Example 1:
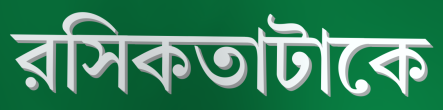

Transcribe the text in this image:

রসিকতাটাকে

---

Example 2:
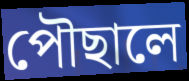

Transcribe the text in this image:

পৌছালে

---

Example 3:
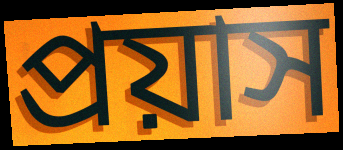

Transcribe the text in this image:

প্রয়াস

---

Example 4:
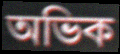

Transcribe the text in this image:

অভিক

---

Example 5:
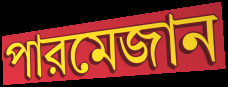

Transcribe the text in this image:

পারমেজান